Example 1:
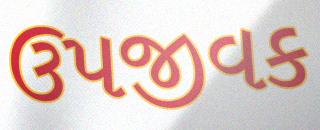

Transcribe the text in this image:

ઉપજીવક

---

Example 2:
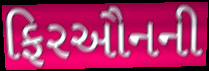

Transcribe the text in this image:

ફિરઔનની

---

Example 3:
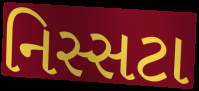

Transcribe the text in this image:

નિસ્સટા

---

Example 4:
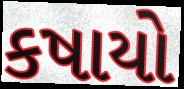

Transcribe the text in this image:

કષાયો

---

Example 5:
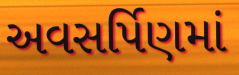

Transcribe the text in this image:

અવસર્પિણમાં